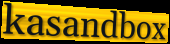
kasandbox